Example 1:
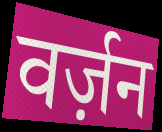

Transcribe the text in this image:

वर्ज़न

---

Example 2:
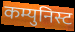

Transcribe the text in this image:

कम्युनिस्ट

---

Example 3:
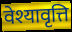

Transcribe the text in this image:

वेश्यावृत्ति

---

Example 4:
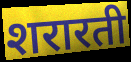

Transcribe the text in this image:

शरारती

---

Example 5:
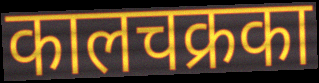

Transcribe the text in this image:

कालचक्रका